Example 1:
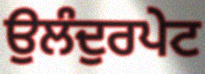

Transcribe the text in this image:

ਉਲੰਦੁਰਪੇਟ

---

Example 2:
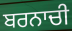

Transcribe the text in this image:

ਬਰਨਾਚੀ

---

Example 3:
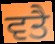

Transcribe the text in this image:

ਵਤੈ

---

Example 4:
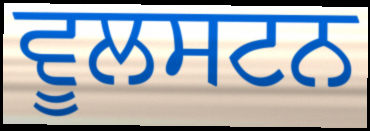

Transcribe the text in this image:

ਵੂਲਸਟਨ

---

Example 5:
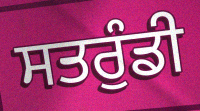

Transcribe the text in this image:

ਸਤਰੁੰਡੀ